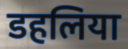
डहलिया